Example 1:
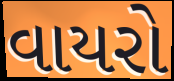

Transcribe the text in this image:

વાયરો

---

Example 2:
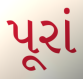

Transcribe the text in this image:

પૂરાં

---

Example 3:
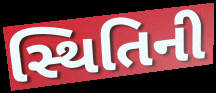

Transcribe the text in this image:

સ્થિતિની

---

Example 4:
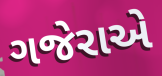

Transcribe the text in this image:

ગજેરાએ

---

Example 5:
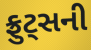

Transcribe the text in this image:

ફ્રુટ્સની